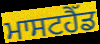
ਮਾਸਟਹੈੱਡ